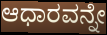
ಆಧಾರವನ್ನೇ